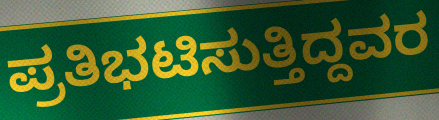
ಪ್ರತಿಭಟಿಸುತ್ತಿದ್ದವರ